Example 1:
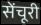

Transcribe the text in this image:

सेंचूरी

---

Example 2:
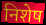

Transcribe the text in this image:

निशेष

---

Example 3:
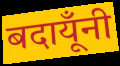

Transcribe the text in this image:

बदायूँनी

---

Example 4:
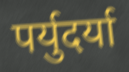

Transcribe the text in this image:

पर्युदर्या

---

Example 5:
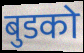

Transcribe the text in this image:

बुडको